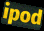
ipod